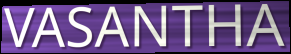
VASANTHA